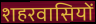
शहरवासियों